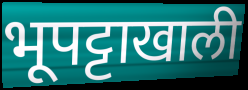
भूपट्टाखाली